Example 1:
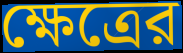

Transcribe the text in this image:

ক্ষেত্রের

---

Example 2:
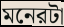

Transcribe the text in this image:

মনেরটা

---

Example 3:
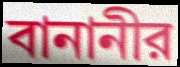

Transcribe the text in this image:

বানানীর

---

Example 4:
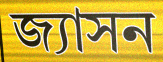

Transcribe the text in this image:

জ্যাসন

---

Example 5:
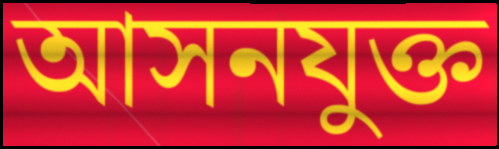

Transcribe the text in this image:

আসনযুক্ত